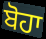
ਬੋਹਾ